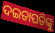
ଦଇତାପତିଙ୍କୁ